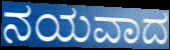
ನಯವಾದ